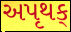
અપૃથક્